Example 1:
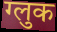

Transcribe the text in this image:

ग्लुक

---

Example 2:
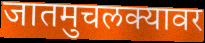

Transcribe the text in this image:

जातमुचलक्यावर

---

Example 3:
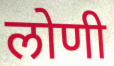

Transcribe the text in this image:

लोणी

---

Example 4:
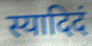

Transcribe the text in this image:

स्यादिदं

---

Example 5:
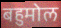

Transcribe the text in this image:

बहुमोल